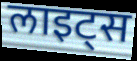
लाइट्स